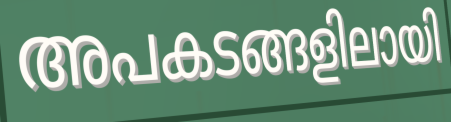
അപകടങ്ങളിലായി